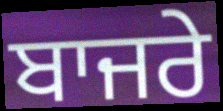
ਬਾਜਰੇ